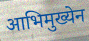
आभिमुख्येन